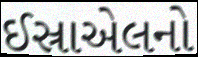
ઈસ્રાએલનો